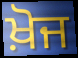
ਖ਼ੋਜ